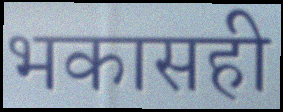
भकासही